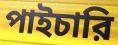
পাইচারি